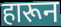
हारून